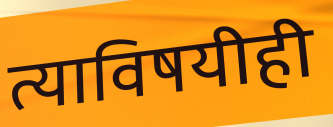
त्याविषयीही